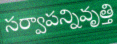
సర్వాపన్నివృత్తి